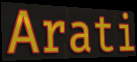
Arati